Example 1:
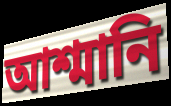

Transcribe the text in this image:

আশ্মানি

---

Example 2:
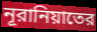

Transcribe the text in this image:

নূরানিয়াতের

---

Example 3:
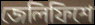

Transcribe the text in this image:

জেলিফিশে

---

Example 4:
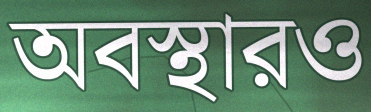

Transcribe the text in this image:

অবস্থারও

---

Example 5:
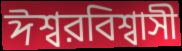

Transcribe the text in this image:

ঈশ্বরবিশ্বাসী